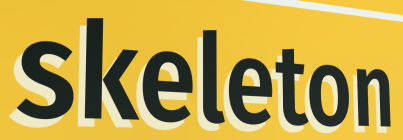
skeleton